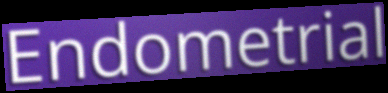
Endometrial